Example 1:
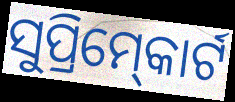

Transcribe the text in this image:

ସୁପ୍ରିମ୍‍କୋର୍ଟ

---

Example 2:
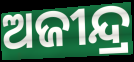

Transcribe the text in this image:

ଅଜୀନ୍ଦ୍ର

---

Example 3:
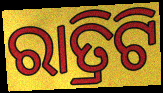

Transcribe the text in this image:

ରାତ୍ରିଟି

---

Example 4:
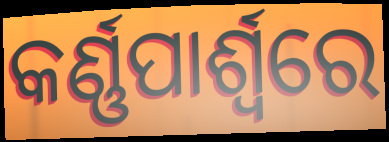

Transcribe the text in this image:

କର୍ଣ୍ଣପାର୍ଶ୍ୱରେ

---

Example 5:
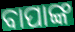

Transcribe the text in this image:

ବାପାଙ୍କ